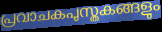
പ്രവാചകപുസ്തകങ്ങളും